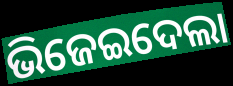
ଭିଜେଇଦେଲା